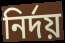
নিৰ্দয়